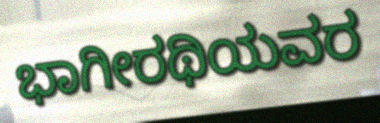
ಭಾಗೀರಥಿಯವರ